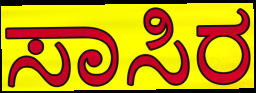
ಸಾಸಿರ